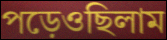
পড়েওছিলাম